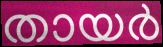
തായർ